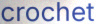
crochet